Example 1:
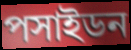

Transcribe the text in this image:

পসাইডন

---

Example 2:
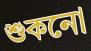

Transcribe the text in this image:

শুকনো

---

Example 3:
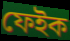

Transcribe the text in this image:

ফেইক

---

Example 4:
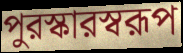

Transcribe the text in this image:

পুরস্কারস্বরূপ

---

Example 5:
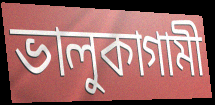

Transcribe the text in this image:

ভালুকাগামী